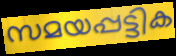
സമയപ്പട്ടിക